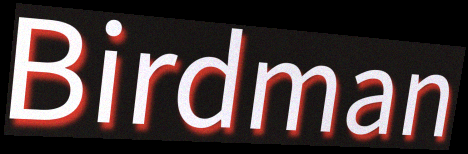
Birdman